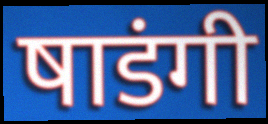
षाडंगी